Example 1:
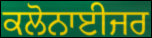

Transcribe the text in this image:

ਕਲੋਨਾਈਜਰ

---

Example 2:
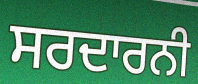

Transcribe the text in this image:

ਸਰਦਾਰਨੀ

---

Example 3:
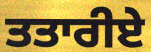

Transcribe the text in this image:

ਤਤਾਰੀਏ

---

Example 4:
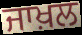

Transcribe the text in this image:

ਜਾਖ਼ਲ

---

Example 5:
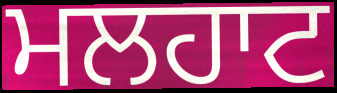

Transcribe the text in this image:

ਮਲਹਾਟ